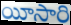
యీసారి